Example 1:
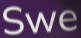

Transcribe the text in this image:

Swe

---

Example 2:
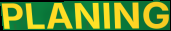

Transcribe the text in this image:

PLANING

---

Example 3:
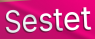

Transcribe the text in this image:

Sestet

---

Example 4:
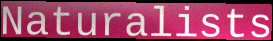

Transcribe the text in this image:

Naturalists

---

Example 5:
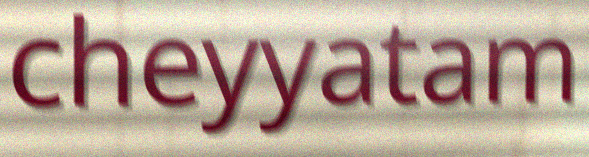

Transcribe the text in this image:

cheyyatam